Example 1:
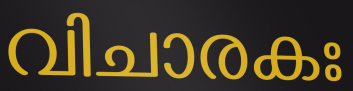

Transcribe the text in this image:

വിചാരകഃ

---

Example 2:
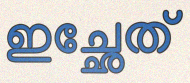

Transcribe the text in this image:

ഇച്ഛേത്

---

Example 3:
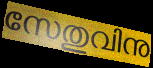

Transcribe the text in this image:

സേതുവിനു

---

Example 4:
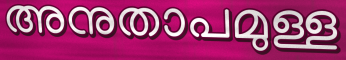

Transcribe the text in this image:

അനുതാപമുള്ള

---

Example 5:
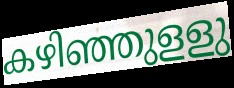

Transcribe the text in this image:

കഴിഞ്ഞുളളു